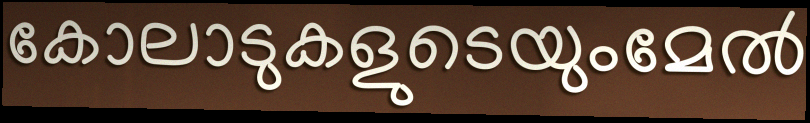
കോലാടുകളുടെയുംമേൽ